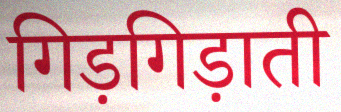
गिड़गिड़ाती